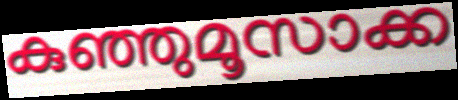
കുഞ്ഞുമൂസാക്ക